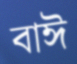
বাঈ